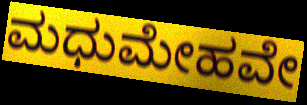
ಮಧುಮೇಹವೇ